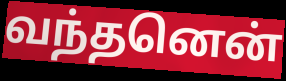
வந்தனென்